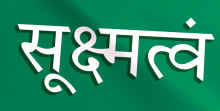
सूक्ष्मत्वं